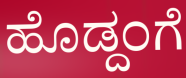
ಹೊಡ್ದಂಗೆ